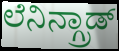
ಲೆನಿನ್ಗ್ರಾಡ್